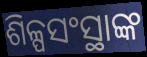
ଶିଳ୍ପସଂସ୍ଥାଙ୍କ